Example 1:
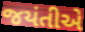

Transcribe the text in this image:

જયંતીએ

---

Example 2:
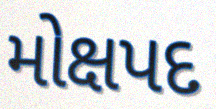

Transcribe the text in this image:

મોક્ષપદ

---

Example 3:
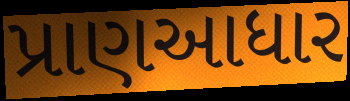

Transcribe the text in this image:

પ્રાણઆધાર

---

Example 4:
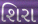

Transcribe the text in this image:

શિરા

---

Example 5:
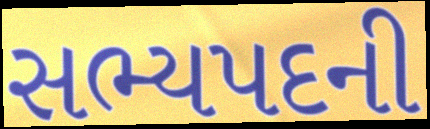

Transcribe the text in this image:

સભ્યપદની